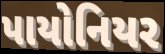
પાયોનિયર